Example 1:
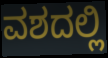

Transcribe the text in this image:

ವಶದಲ್ಲಿ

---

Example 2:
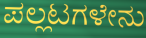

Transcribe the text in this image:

ಪಲ್ಲಟಗಳೇನು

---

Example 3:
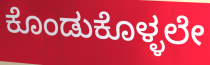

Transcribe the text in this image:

ಕೊಂಡುಕೊಳ್ಳಲೇ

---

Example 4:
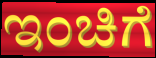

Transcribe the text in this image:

ಇಂಚಿಗೆ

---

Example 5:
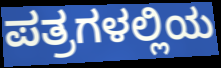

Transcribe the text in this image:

ಪತ್ರಗಳಲ್ಲಿಯ